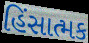
હિંસાત્મક